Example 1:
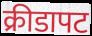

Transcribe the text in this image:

क्रीडापट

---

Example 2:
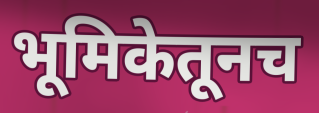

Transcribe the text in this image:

भूमिकेतूनच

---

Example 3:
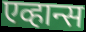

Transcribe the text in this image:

एव्हान्स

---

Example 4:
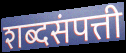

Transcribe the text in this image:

शब्दसंपत्ती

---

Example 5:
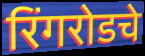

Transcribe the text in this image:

रिंगरोडचे